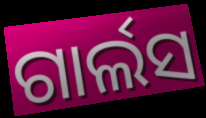
ଗାର୍ଲସ